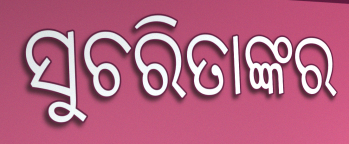
ସୁଚରିତାଙ୍କର